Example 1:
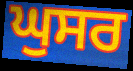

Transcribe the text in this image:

ਘੁਸਰ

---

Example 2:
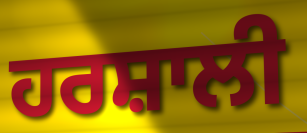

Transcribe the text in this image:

ਹਰਸ਼ਾਲੀ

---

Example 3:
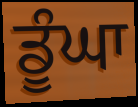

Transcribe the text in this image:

ਡੂੰਘਾ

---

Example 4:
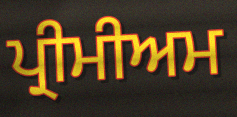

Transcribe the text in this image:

ਪ੍ਰੀਮੀਅਮ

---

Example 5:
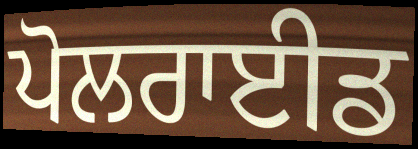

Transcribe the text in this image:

ਪੋਲਰਾਈਡ